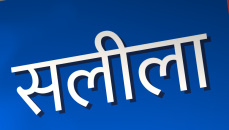
सलीला